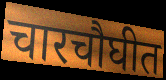
चारचौघीत